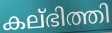
കല്ഭിത്തി